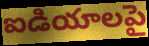
ఐడియాలపై